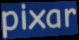
pixar